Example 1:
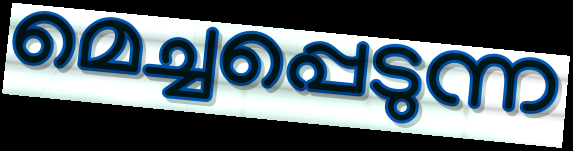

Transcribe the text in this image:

മെച്ചപ്പെടുന്ന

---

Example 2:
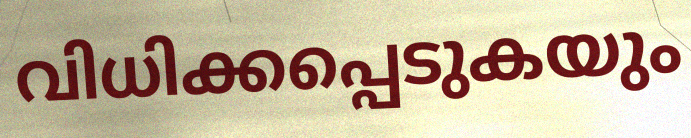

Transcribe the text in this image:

വിധിക്കപ്പെടുകയും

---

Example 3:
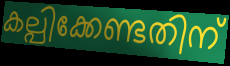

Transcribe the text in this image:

കല്പിക്കേണ്ടതിന്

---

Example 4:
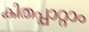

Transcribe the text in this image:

കിതപ്പാറ്റാം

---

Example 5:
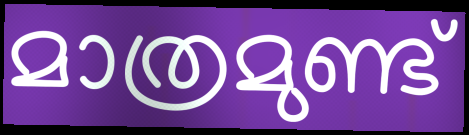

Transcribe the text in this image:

മാത്രമുണ്ട്